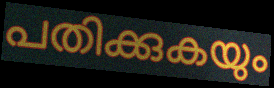
പതിക്കുകയും